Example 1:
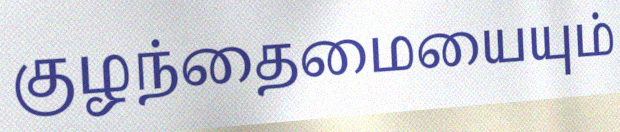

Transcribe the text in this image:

குழந்தைமையையும்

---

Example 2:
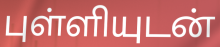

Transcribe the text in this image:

புள்ளியுடன்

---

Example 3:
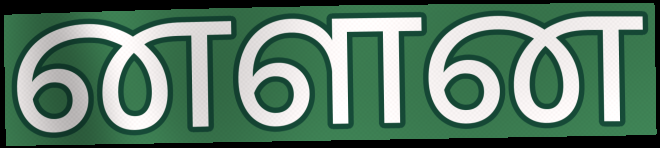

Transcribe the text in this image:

னளன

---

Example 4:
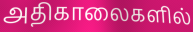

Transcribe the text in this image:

அதிகாலைகளில்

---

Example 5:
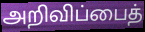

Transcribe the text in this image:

அறிவிப்பைத்